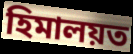
হিমালয়ত